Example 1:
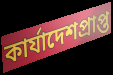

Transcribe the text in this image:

কার্যাদেশপ্রাপ্ত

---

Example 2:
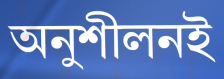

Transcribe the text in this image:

অনুশীলনই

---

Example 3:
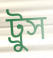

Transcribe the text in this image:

ট্রুস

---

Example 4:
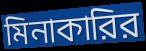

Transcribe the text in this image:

মিনাকারির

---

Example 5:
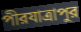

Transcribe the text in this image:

পীরযাত্রাপুর